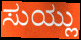
ಸುಯ್ಲು